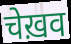
चेख़व